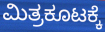
ಮಿತ್ರಕೂಟಕ್ಕೆ